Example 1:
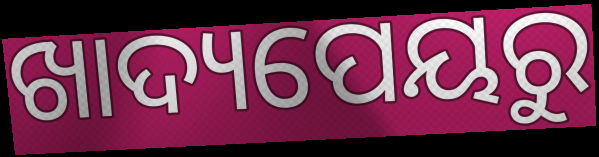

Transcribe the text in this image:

ଖାଦ୍ୟପେୟରୁ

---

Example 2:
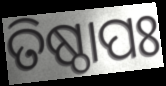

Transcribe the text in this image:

ତିଷ୍ଠାପଃ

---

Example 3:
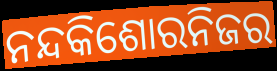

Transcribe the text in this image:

ନନ୍ଦକିଶୋରନିଜର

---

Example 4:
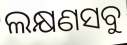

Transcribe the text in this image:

ଲକ୍ଷଣସବୁ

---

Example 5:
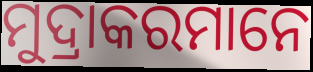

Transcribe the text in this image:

ମୁଦ୍ରାକରମାନେ